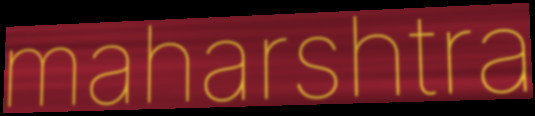
maharshtra